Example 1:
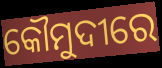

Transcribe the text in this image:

କୌମୁଦୀରେ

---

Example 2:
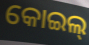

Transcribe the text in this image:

କୋଇଲ୍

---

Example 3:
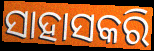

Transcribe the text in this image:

ସାହାସକରି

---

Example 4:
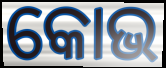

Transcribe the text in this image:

କୋଭ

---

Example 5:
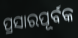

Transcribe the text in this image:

ପ୍ରସାରପୂର୍ବକ